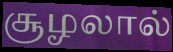
சூழலால்